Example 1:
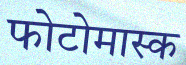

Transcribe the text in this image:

फोटोमास्क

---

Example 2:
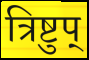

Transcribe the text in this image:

त्रिष्टुप्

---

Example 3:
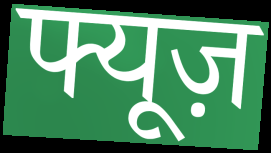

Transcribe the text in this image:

फ्यूज़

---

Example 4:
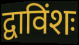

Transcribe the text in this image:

द्वाविंशः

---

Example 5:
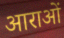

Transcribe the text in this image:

आराओं